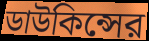
ডাউকিন্সের